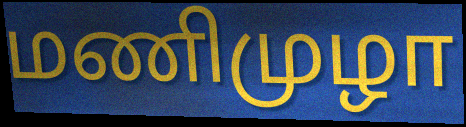
மணிமுழா